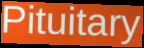
Pituitary